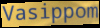
Vasippom